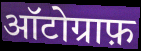
ऑटोग्राफ़